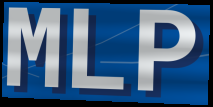
MLP